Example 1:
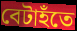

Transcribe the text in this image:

বেটাহঁতে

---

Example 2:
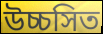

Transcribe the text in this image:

উচ্চসিত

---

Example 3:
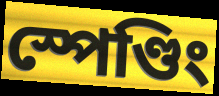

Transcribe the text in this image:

স্পেণ্ডিং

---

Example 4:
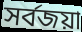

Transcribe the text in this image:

সৰ্বজয়া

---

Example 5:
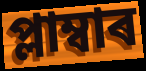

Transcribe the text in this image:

প্লাম্বাৰ